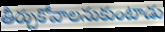
తీర్చుకోవాలనుకుంటాడు